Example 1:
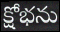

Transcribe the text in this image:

క్షోభను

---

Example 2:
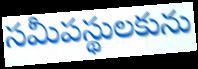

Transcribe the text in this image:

సమీపస్థులకును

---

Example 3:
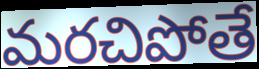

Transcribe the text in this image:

మరచిపోతే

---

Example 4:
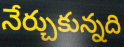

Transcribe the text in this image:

నేర్చుకున్నది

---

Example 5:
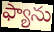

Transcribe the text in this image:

ఫ్యాను